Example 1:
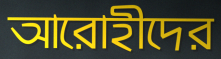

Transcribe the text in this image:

আরোহীদের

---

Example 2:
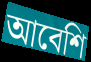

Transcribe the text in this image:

আবেশি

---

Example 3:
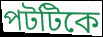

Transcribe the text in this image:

পটটিকে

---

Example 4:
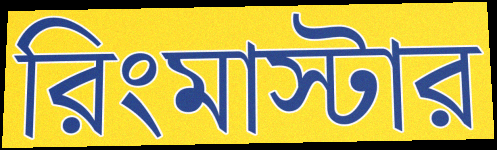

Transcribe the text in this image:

রিংমাস্টার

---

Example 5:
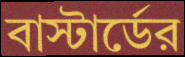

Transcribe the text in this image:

বাস্টার্ডের